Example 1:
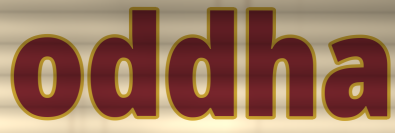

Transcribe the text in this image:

oddha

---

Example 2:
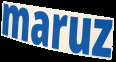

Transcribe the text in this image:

maruz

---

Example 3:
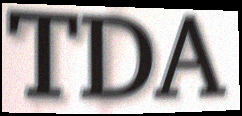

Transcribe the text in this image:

TDA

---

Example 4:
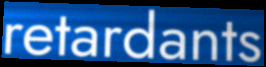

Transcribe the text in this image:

retardants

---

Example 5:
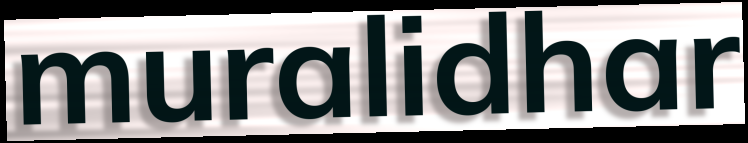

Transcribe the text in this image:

muralidhar